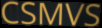
CSMVS